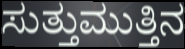
ಸುತ್ತುಮುತ್ತಿನ